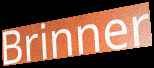
Brinner